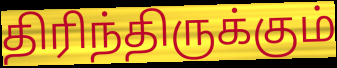
திரிந்திருக்கும்